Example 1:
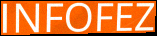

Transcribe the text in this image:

INFOFEZ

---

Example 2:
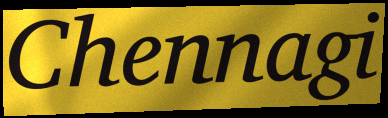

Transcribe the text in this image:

Chennagi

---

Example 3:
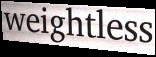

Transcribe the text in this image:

weightless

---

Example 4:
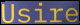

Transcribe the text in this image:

Usire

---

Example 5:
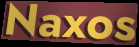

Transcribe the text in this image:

Naxos